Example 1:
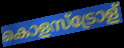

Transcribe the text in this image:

കൊളസ്ട്രോള്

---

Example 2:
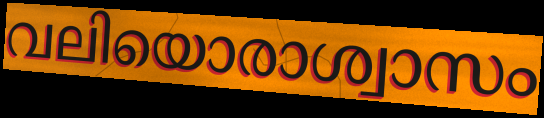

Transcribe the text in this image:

വലിയൊരാശ്വാസം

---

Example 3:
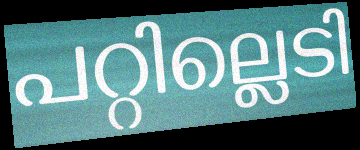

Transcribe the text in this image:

പറ്റില്ലെടി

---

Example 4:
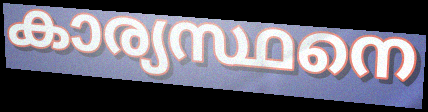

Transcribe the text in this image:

കാര്യസ്ഥനെ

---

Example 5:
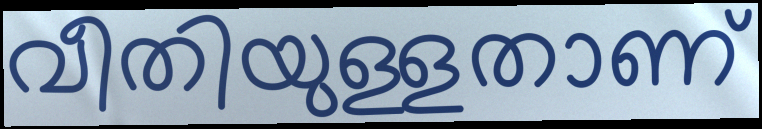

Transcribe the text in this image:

വീതിയുള്ളതാണ്